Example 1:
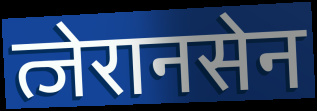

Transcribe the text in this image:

त्जेरानसेन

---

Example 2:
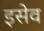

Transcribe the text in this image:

इसेव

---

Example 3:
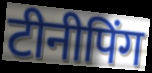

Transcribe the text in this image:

टीनीपिंग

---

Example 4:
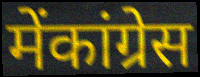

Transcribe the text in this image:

मेंकांग्रेस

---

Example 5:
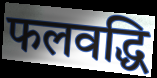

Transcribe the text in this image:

फलवद्धि